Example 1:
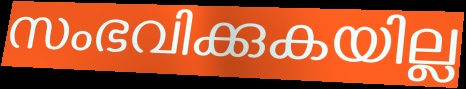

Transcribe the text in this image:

സംഭവിക്കുകയില്ല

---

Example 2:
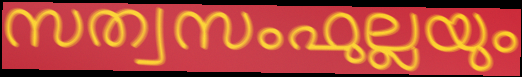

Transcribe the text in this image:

സത്വസംഫുല്ലയും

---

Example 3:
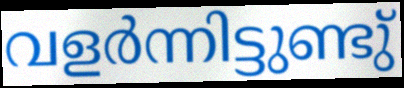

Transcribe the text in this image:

വളർന്നിട്ടുണ്ടു്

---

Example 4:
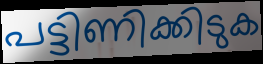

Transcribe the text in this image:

പട്ടിണിക്കിടുക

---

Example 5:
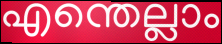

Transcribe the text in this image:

എന്തെല്ലാം